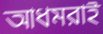
আধমরাই